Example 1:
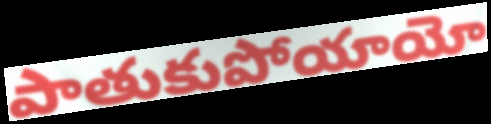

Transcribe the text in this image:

పాతుకుపోయాయో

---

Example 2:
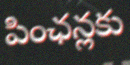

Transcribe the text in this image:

పింఛన్లకు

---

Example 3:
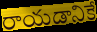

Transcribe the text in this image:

రాయడానికే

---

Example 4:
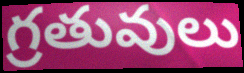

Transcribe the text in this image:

గ్రతువులు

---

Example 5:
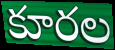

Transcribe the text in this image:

కూరల